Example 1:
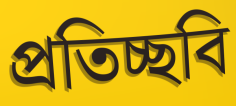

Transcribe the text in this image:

প্ৰতিচ্ছবি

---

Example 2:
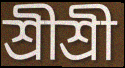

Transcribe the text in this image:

শ্ৰীশ্ৰী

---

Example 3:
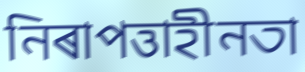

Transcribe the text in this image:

নিৰাপত্তাহীনতা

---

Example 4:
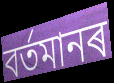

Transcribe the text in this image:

বৰ্তমানৰ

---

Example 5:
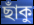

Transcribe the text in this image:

ছাঁকু